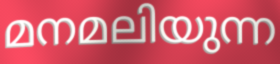
മനമലിയുന്ന